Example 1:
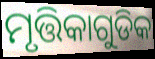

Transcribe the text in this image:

ମୃତ୍ତିକାଗୁଡିକ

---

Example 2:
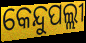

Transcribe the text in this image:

କେନ୍ଦୁପଲ୍ଲୀ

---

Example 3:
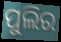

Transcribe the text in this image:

ପୁଲିର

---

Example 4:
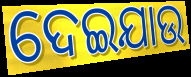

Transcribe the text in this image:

ଦେଇଯାଉ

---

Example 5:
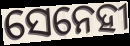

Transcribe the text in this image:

ସେନେହୀ